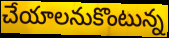
చేయాలనుకొంటున్న